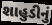
શાહુડીનું